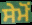
ਸੇਮੋਂ